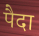
पैदा